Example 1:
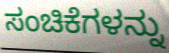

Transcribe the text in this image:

ಸಂಚಿಕೆಗಳನ್ನು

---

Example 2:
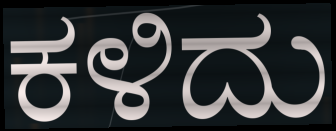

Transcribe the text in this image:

ಕಳಿದು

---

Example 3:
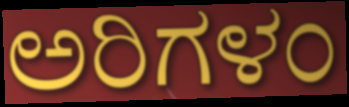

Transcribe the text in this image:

ಅರಿಗಳಂ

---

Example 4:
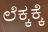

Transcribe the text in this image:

ಲೆಕ್ಕಕ್ಕೆ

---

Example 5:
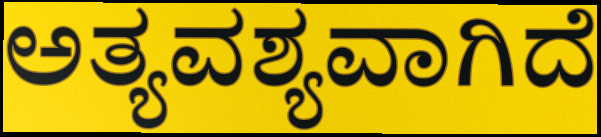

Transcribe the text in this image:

ಅತ್ಯವಶ್ಯವಾಗಿದೆ